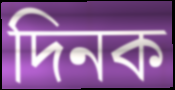
দিনক